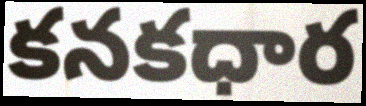
కనకధార